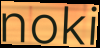
noki